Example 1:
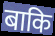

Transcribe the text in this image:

बाकि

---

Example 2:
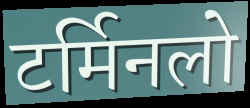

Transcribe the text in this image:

टर्मिनलो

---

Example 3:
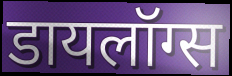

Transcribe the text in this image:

डायलॉग्स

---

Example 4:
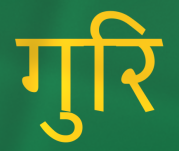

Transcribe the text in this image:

गुरि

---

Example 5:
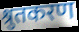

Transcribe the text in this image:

श्रुतकरण